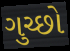
ગુચ્છો